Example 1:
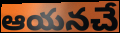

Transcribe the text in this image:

ఆయనచే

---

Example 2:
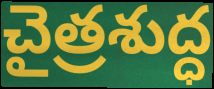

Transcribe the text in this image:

చైత్రశుద్ధ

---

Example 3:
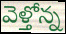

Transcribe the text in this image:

వెళ్తోన్న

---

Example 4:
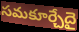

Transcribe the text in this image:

సమకూర్చేదై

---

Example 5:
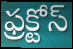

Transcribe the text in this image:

ఫ్రక్టోస్